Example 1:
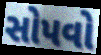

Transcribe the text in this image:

સોપવો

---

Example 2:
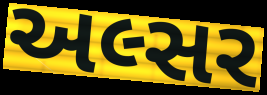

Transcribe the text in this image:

અલ્સર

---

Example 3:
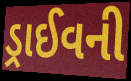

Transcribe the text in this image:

ડ્રાઈવની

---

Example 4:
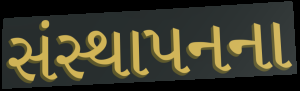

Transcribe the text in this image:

સંસ્થાપનના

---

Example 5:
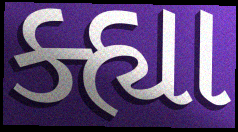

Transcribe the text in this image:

ક્હ્યા